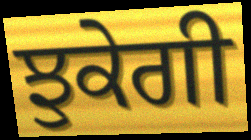
ਝੁਕੇਗੀ